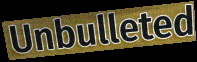
Unbulleted